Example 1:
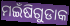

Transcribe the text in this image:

ମଇଁଷିଗୁଡାକ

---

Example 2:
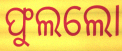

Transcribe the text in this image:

ଫୁଲଲୋ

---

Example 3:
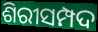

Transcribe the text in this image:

ଶିରୀସମ୍ପଦ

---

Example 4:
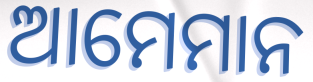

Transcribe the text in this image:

ଆମେମାନ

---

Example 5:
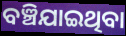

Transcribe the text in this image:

ବଞ୍ଚିଯାଇଥିବା